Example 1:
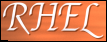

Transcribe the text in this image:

RHEL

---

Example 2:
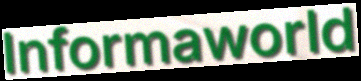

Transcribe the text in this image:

Informaworld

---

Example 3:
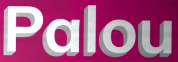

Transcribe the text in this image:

Palou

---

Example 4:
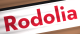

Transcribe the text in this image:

Rodolia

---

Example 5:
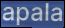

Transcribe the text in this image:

apala